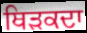
ਥਿੜਕਦਾ